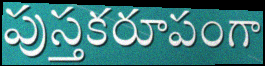
పుస్తకరూపంగా